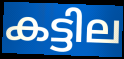
കട്ടില